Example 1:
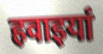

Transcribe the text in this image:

हवाइयां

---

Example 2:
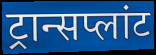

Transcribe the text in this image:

ट्रान्सप्लांट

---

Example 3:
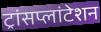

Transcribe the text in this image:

ट्रांसप्लांटेशन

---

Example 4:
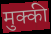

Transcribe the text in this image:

मुक्की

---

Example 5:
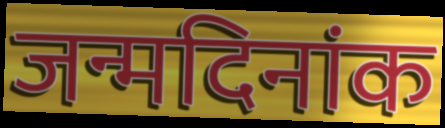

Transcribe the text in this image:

जन्मदिनांक